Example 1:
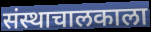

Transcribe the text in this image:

संस्थाचालकाला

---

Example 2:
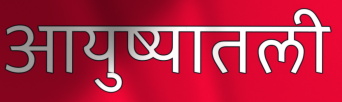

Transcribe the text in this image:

आयुष्यातली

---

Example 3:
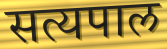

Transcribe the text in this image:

सत्यपाल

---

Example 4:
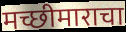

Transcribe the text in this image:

मच्छीमाराचा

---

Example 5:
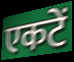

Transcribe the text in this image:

एकटें